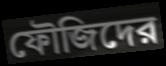
ফৌজিদের